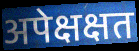
अपेक्षक्षत